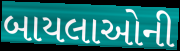
બાયલાઓની